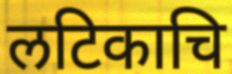
लटिकाचि